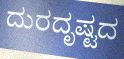
ದುರದೃಷ್ಟದ